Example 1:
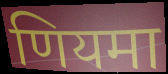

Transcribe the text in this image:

णियमा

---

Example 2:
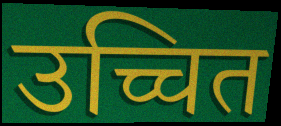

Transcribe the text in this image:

उच्चित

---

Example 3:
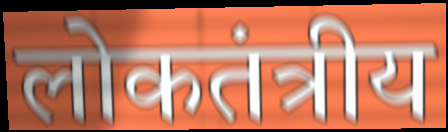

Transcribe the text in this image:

लोकतंत्रीय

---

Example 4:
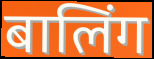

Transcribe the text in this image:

बालिंग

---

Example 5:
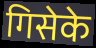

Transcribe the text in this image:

गिसेके